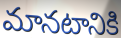
మానటానికి